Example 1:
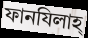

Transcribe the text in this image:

ফানযিলাহ্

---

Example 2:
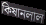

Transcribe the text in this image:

কিষানলাল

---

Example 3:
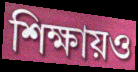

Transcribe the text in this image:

শিক্ষায়ও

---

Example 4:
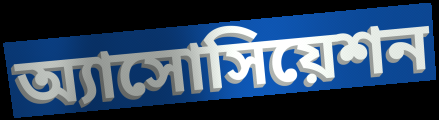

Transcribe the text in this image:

অ্যাসোসিয়েশন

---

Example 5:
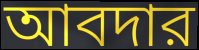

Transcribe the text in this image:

আবদার